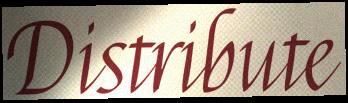
Distribute